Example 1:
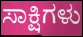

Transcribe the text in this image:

ಸಾಕ್ಷಿಗಳು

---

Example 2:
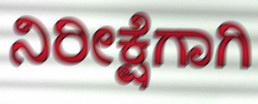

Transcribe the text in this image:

ನಿರೀಕ್ಷೆಗಾಗಿ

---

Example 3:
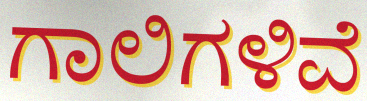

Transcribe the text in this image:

ಗಾಲಿಗಳಿವೆ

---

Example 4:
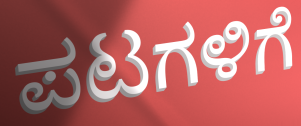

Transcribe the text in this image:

ಪಟಗಳಿಗೆ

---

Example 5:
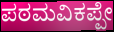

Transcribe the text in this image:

ಪಠಮವಿಕಪ್ಪೇ